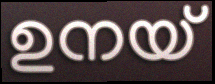
ഉനയ്